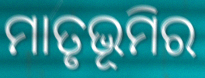
ମାତୃଭୂମିର